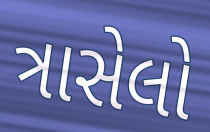
ત્રાસેલો